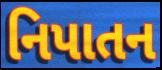
નિપાતન